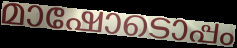
മാഷോടൊപ്പം